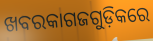
ଖବରକାଗଜଗୁଡ଼ିକରେ